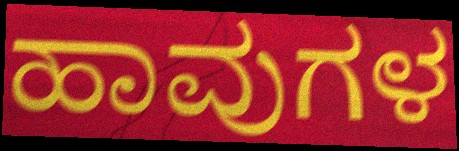
ಹಾವುಗಳ